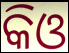
କିଓ